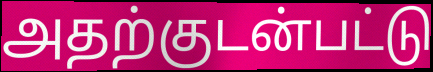
அதற்குடன்பட்டு